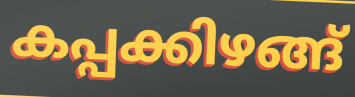
കപ്പക്കിഴങ്ങ്